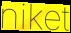
niket